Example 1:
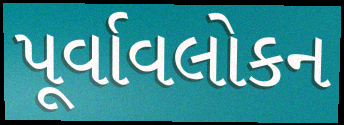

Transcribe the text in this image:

પૂર્વાવલોકન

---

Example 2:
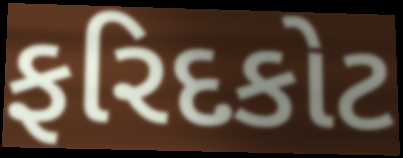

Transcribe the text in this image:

ફરિદકોટ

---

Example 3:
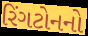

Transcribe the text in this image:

રિંગટોનનો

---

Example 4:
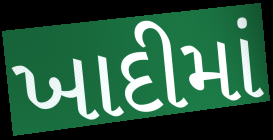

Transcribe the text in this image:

ખાદીમાં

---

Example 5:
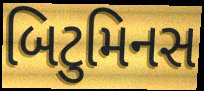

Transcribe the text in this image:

બિટુમિનસ